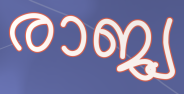
രാജ്യ